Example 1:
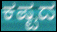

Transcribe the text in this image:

ಕಷ್ಟದ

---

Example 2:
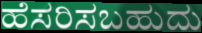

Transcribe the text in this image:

ಹೆಸರಿಸಬಹುದು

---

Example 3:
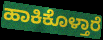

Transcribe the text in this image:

ಹಾಕಿಕೊಳ್ತಾರೆ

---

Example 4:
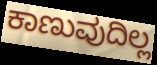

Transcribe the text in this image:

ಕಾಣುವುದಿಲ್ಲ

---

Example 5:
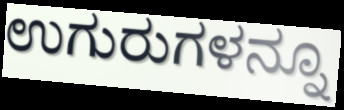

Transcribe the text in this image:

ಉಗುರುಗಳನ್ನೂ